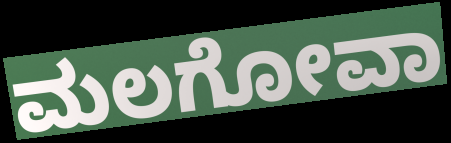
ಮಲಗೋವಾ